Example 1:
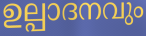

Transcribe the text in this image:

ഉല്പാദനവും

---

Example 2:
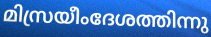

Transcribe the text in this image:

മിസ്രയീംദേശത്തിന്നു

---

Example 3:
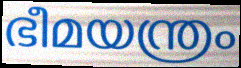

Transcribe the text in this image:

ഭീമയന്ത്രം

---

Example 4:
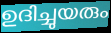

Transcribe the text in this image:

ഉദിച്ചുയരും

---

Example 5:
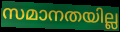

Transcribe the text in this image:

സമാനതയില്ല